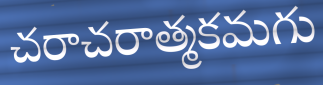
చరాచరాత్మకమగు